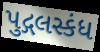
પુદ્ગલસ્કંધ